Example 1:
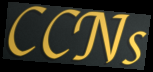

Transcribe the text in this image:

CCNs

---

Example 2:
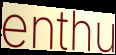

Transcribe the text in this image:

enthu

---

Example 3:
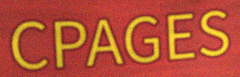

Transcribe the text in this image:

CPAGES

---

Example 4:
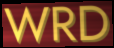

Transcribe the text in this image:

WRD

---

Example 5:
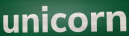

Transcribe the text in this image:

unicorn